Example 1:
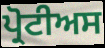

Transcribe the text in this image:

ਪ੍ਰੋਟੀਅਸ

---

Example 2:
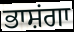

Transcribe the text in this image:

ਭਾਸ਼ਂਗਾ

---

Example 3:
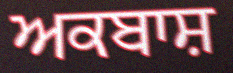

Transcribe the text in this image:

ਅਕਬਾਸ਼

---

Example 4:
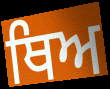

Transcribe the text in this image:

ਥਿਅ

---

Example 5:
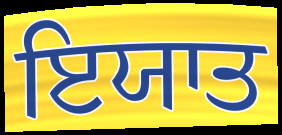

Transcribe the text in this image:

ਇਯਾਤ